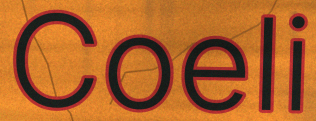
Coeli